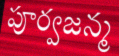
పూర్వజన్మ